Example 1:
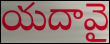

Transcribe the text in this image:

యదావై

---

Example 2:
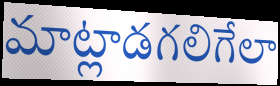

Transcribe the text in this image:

మాట్లాడగలిగేలా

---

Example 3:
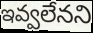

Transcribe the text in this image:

ఇవ్వలేనని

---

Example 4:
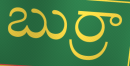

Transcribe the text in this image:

బుర్రా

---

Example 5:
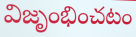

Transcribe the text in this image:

విజృంభించటం